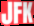
JFK